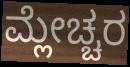
ಮ್ಲೇಚ್ಚರ